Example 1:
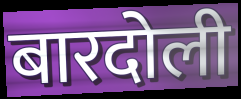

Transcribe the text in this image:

बारदोली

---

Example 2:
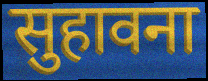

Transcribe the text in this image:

सुहावना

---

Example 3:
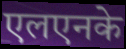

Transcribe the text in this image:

एलएनके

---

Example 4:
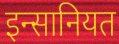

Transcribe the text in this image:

इन्सानियत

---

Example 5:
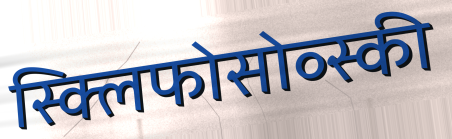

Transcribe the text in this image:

स्क्लिफोसोव्स्की